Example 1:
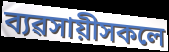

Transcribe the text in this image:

ব্যৱসায়ীসকলে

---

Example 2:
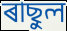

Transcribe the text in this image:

ৰাছুল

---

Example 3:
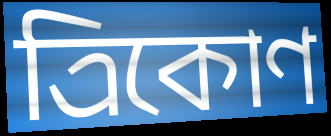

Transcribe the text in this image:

ত্ৰিকোণ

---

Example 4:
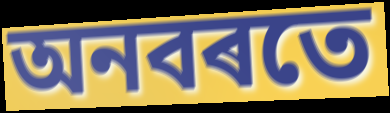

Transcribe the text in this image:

অনবৰতে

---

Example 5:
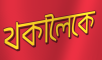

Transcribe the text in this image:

থকালৈকে